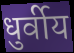
धुर्वीय